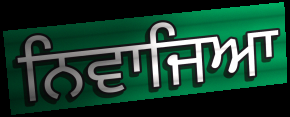
ਨਿਵਾਜਿਆ